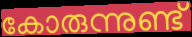
കോരുന്നുണ്ട്